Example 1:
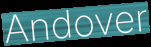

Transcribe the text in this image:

Andover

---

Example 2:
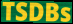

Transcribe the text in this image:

TSDBs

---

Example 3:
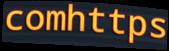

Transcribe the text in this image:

comhttps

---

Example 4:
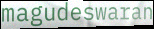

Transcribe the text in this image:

magudeswaran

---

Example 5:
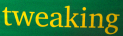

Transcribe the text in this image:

tweaking